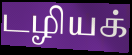
டழியக்